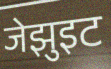
जेझुइट